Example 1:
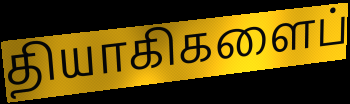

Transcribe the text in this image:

தியாகிகளைப்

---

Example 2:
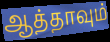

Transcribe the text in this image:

ஆத்தாவும்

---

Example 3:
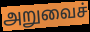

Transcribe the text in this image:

அறுவைச்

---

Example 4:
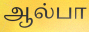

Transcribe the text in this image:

ஆல்பா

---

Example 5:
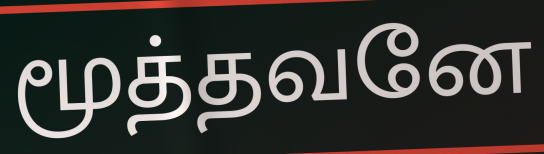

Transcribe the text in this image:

மூத்தவனே